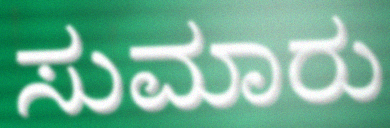
ಸುಮಾರು